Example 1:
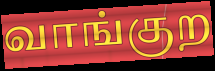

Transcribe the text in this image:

வாங்குற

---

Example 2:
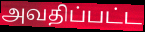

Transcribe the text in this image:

அவதிப்பட்ட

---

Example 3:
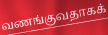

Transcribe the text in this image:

வணங்குவதாகக்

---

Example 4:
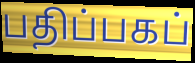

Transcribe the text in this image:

பதிப்பகப்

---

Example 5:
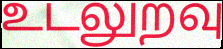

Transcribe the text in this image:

உடலுறவு